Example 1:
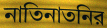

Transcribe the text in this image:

নাতিনাতনির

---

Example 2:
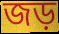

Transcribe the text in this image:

জড়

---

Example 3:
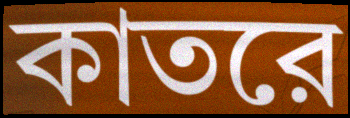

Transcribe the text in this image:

কাতরে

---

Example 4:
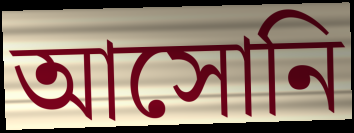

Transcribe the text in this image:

আসোনি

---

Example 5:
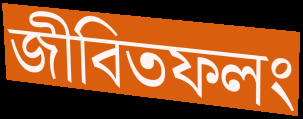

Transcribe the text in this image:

জীবিতফলং